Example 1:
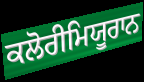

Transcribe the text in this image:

ਕਲੋਰੀਮਿਯੂਰਾਨ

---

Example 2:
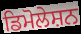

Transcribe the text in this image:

ਡਿਮੋਲੇਸ਼ਨ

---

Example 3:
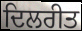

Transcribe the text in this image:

ਦਿਲਰੀਤ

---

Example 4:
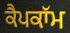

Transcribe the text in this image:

ਕੈਪਕਾੱਮ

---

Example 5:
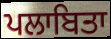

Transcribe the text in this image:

ਪਲਾਬਿਤਾ